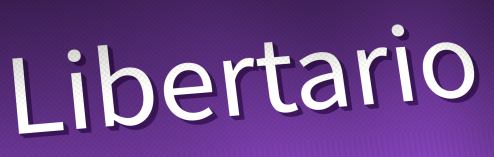
Libertario